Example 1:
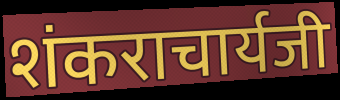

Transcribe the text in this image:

शंकराचार्यजी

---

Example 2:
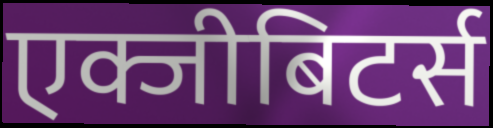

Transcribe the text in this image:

एक्जीबिटर्स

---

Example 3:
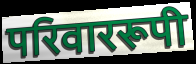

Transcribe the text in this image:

परिवाररूपी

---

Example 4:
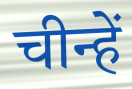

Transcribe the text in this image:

चीन्हें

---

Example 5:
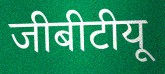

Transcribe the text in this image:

जीबीटीयू